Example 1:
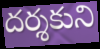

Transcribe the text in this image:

దర్శకుని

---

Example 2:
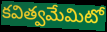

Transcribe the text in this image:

కవిత్వమేమిటో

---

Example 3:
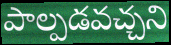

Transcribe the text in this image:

పాల్పడవచ్చని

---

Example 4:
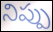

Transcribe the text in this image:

నిప్పు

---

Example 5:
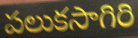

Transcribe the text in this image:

పలుకసాగిరి